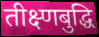
तीक्ष्णबुद्धि